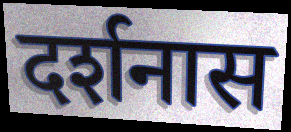
दर्शनास